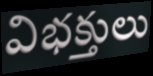
విభక్తులు